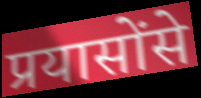
प्रयासोंसे